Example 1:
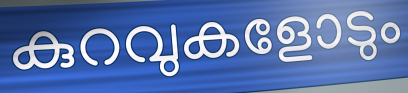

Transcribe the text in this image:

കുറവുകളോടും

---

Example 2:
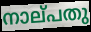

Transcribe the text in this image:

നാല്‌പതു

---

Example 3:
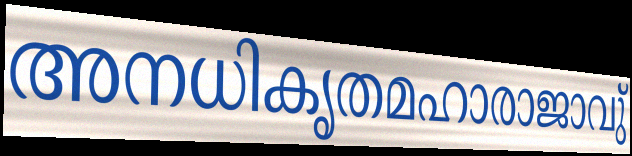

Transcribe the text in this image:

അനധികൃതമഹാരാജാവു്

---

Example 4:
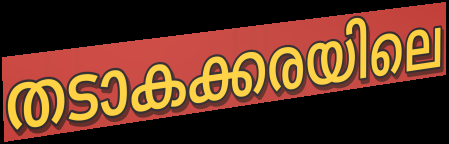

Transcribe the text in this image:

തടാകക്കരയിലെ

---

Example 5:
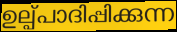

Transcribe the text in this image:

ഉല്പ്പാദിപ്പിക്കുന്ന